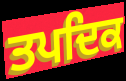
ਤਪਦਿਕ